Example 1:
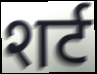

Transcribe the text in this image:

शर्ट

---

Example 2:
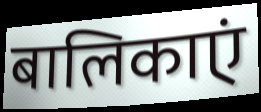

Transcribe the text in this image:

बालिकाएं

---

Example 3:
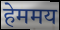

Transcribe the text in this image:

हेममय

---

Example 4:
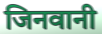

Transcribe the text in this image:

जिनवानी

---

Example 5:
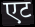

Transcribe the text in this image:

एट